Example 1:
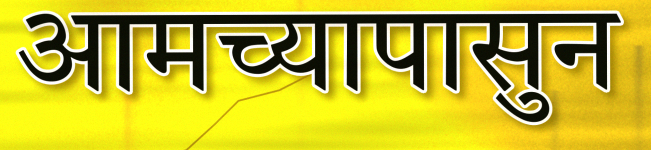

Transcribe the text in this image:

आमच्यापासुन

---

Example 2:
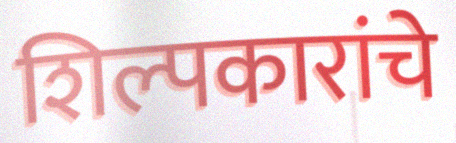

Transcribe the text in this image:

शिल्पकारांचे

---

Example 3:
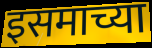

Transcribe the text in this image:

इसमाच्या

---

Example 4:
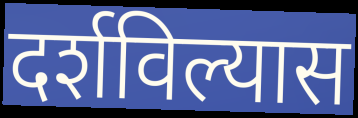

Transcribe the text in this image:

दर्शविल्यास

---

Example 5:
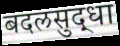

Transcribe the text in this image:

बदलसुद्धा